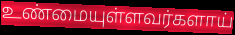
உண்மையுள்ளவர்களாய்